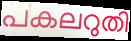
പകലറുതി